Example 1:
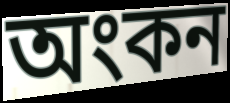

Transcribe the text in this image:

অংকন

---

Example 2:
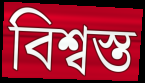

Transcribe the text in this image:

বিশ্বস্ত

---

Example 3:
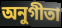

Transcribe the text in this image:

অনুগীতা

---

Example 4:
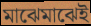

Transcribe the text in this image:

মাঝেমাঝেই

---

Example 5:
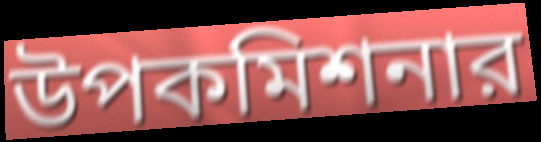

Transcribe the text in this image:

উপকমিশনার